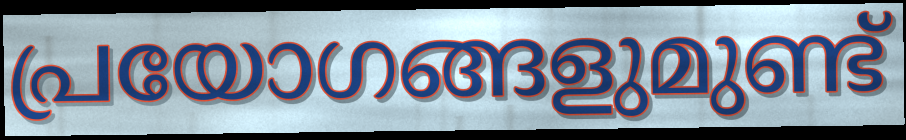
പ്രയോഗങ്ങളുമുണ്ട്